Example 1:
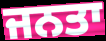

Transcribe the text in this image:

ਜਨਤਾ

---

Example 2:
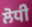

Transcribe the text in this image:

ਲੋਧੀ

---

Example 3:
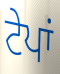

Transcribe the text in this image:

ਟੇਪਾਂ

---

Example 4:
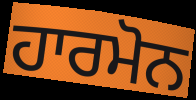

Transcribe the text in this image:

ਹਾਰਮੋਨ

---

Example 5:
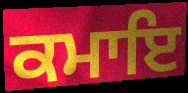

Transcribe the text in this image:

ਕਮਾਇ